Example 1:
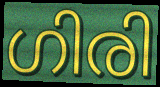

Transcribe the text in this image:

ഗിരി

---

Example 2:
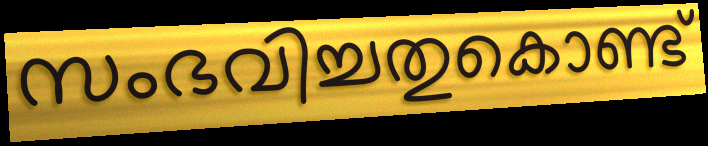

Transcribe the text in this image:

സംഭവിച്ചതുകൊണ്ട്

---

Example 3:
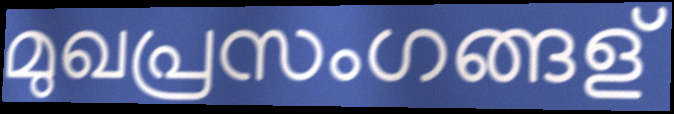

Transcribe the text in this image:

മുഖപ്രസംഗങ്ങള്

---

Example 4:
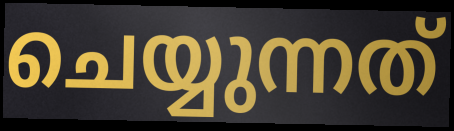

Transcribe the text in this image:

ചെയ്യുന്നത്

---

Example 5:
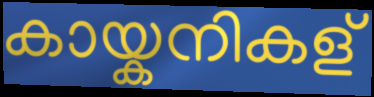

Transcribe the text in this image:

കായ്കനികള്